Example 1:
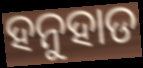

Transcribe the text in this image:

ହନୁହାଡ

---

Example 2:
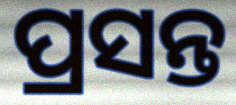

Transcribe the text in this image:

ପ୍ରସନ୍ତ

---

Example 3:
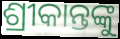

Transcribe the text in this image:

ଶ୍ରୀକାନ୍ତଙ୍କୁ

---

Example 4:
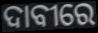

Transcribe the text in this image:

ଦାବୀରେ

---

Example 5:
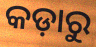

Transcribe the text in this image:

କଡ଼ାରୁ